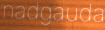
nadgauda